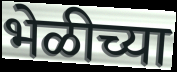
भेळीच्या